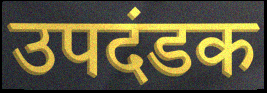
उपदंडक